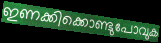
ഇണക്കിക്കൊണ്ടുപോവുക